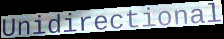
Unidirectional